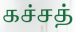
கச்சத்